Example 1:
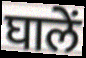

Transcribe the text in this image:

घालें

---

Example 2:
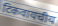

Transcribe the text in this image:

टिकवायचीय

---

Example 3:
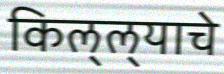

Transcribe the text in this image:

किल्ल्याचे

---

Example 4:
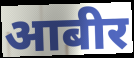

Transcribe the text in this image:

आबीर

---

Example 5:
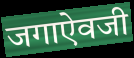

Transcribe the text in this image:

जगाऐवजी